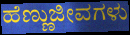
ಹೆಣ್ಣುಜೀವಗಳು